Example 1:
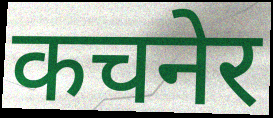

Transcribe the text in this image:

कचनेर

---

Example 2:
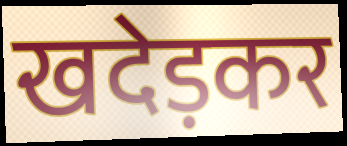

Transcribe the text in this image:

खदेड़कर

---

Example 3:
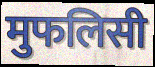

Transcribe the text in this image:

मुफलिसी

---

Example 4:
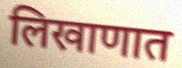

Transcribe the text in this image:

लिखाणात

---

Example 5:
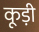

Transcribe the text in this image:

कूड़ी